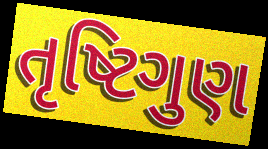
તૃષ્ટિગુણ